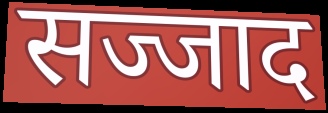
सज्जाद